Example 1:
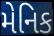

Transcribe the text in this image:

મેનિક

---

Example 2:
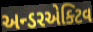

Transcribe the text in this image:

અન્ડરએક્ટિવ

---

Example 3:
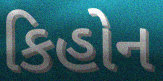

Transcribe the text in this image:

કિહોન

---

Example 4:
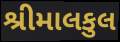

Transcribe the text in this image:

શ્રીમાલકુલ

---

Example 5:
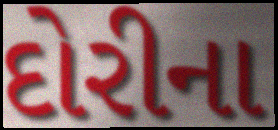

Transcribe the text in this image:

દોરીના